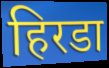
हिरडा